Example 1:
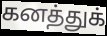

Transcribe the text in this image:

கனத்துக்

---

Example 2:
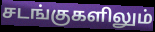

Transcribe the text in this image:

சடங்குகளிலும்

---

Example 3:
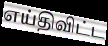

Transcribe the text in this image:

எய்திவிட்ட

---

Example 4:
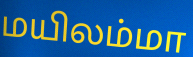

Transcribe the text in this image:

மயிலம்மா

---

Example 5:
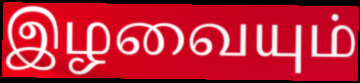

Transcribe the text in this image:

இழவையும்